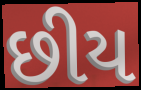
છીય